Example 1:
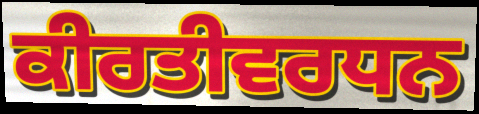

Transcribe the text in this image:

ਕੀਰਤੀਵਰਧਨ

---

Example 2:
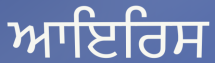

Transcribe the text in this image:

ਆਇਰਿਸ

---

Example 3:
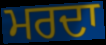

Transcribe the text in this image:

ਮਰਦਾ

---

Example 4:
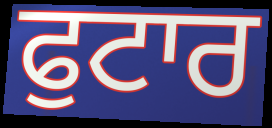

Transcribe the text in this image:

ਫੁਟਾਰ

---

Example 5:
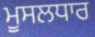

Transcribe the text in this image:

ਮੂਸਲਧਾਰ